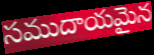
సముదాయమైన